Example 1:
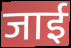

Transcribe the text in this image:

जाई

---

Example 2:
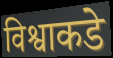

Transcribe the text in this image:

विश्वाकडे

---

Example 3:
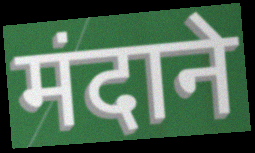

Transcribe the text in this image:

मंदाने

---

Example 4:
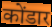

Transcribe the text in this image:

कोंडार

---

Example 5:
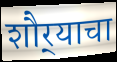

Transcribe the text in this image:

शौर्याचा